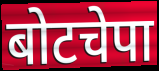
बोटचेपा